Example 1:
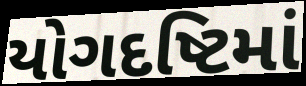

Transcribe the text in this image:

યોગદષ્ટિમાં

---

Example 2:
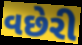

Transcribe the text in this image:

વછેરી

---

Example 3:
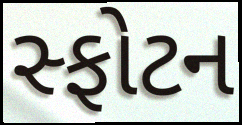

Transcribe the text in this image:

સ્ફોટન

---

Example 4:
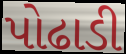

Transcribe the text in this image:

પોઢાડી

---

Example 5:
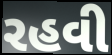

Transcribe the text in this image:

રહવી